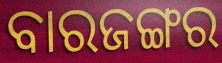
ବାରଜଙ୍ଗର